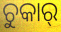
ଚୁକାର୍